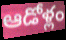
ఆడోళ్లం